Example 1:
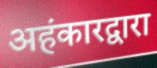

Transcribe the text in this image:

अहंकारद्वारा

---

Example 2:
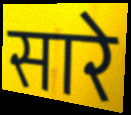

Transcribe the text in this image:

सारे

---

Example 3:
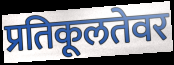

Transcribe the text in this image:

प्रतिकूलतेवर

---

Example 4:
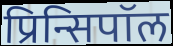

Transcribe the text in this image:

प्रिन्सिपॉल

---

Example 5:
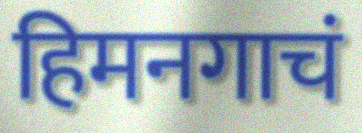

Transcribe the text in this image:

हिमनगाचं